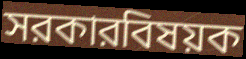
সরকারবিষয়ক